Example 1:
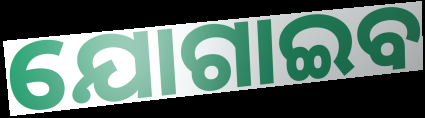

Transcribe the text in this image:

ଯୋଗାଇବ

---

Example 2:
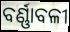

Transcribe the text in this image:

ବର୍ଣ୍ଣାବଳୀ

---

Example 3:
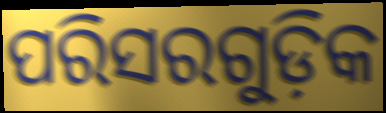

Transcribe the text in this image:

ପରିସରଗୁଡ଼ିକ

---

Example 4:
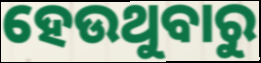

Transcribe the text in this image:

ହେଉଥୁବାରୁ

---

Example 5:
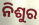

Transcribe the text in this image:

ନିଶୁର